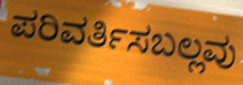
ಪರಿವರ್ತಿಸಬಲ್ಲವು